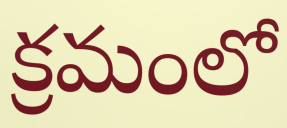
క్రమంలో